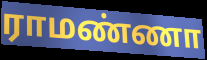
ராமண்ணா